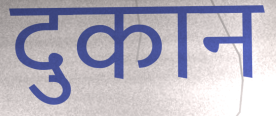
दुकान